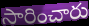
సారించారు